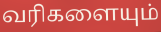
வரிகளையும்